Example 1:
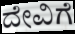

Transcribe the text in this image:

ದೇವಿಗೆ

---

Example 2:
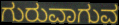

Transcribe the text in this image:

ಗುರುವಾಗುವ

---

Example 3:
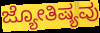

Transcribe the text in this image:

ಜ್ಯೋತಿಷ್ಯವು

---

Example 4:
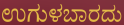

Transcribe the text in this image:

ಉಗುಳಬಾರದು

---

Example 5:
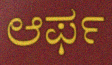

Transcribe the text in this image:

ಆರ್ಫ